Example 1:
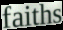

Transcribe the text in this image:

faiths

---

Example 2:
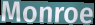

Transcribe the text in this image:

Monroe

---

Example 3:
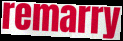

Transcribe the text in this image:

remarry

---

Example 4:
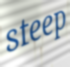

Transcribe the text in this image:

steep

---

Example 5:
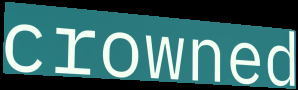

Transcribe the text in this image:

crowned